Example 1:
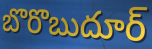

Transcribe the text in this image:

బొరొబుదూర్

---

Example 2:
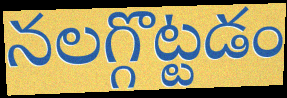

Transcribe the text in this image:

నలగ్గొట్టడం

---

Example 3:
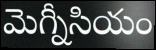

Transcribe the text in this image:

మెగ్నీసియం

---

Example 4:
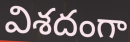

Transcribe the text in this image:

విశదంగా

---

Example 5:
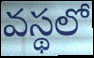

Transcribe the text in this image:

వస్థలో